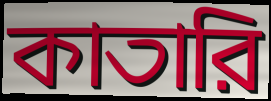
কাতারি